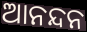
ଆନନ୍ଦନ